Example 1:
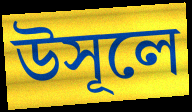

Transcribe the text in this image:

উসূলে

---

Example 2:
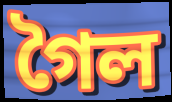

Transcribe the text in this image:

গৈল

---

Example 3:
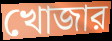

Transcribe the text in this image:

খোজার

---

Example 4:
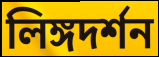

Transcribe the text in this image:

লিঙ্গদর্শন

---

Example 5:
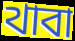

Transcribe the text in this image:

থাবা